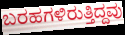
ಬರಹಗಳಿರುತ್ತಿದ್ದವು